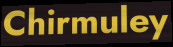
Chirmuley